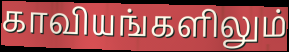
காவியங்களிலும்